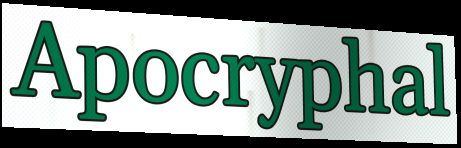
Apocryphal